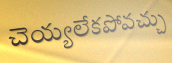
చెయ్యలేకపోవచ్చు